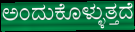
ಅಂದುಕೊಳ್ಳುತ್ತದೆ